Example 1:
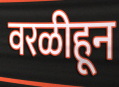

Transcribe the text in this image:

वरळीहून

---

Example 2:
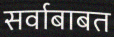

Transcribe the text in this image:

सर्वाबाबत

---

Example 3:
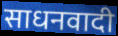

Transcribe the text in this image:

साधनवादी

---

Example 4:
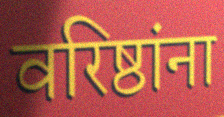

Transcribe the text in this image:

वरिष्ठांना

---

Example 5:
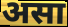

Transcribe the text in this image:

असा